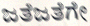
ಜತೆಜತೆಗೇ